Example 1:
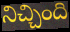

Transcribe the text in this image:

నిచ్చింది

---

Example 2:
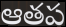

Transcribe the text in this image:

ఆతప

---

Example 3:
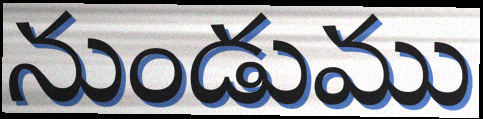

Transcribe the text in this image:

నుండుము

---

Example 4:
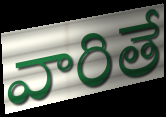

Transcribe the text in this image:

వారితే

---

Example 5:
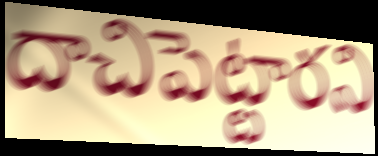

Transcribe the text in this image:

దాచిపెట్టారని